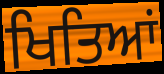
ਖਿਤਿਆਂ